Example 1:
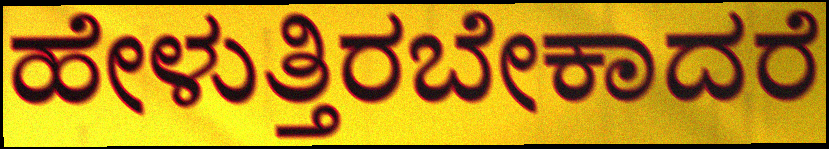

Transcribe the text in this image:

ಹೇಳುತ್ತಿರಬೇಕಾದರೆ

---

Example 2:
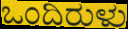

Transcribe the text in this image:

ಒಂದಿರುಳು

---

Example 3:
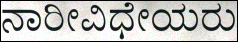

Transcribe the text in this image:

ನಾರೀವಿಧೇಯರು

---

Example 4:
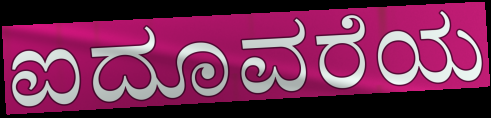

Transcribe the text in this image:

ಐದೂವರೆಯ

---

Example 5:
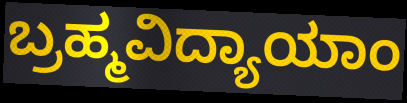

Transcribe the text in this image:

ಬ್ರಹ್ಮವಿದ್ಯಾಯಾಂ